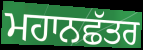
ਮਹਾਨਛੱਤਰ